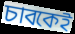
চাবকেই